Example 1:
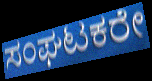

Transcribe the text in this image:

ಸಂಘಟಕರೇ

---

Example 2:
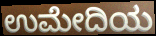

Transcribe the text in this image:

ಉಮೇದಿಯ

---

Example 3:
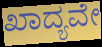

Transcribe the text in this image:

ಖಾದ್ಯವೇ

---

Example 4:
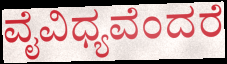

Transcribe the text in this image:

ವೈವಿಧ್ಯವೆಂದರೆ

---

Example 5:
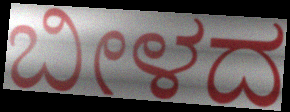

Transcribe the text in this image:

ಬೀಳದ